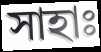
সাহাঃ